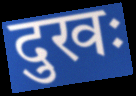
दुखः